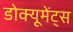
डोक्यूमेंट्स